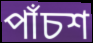
পাঁচশ